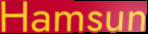
Hamsun